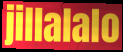
jillalalo